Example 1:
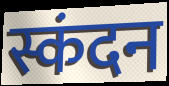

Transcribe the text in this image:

स्कंदन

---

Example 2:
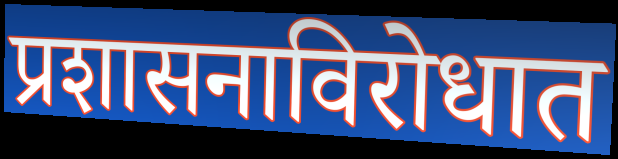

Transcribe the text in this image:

प्रशासनाविरोधात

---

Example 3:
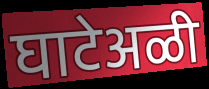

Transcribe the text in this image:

घाटेअळी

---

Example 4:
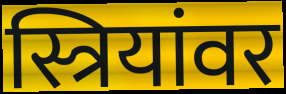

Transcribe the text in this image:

स्त्रियांवर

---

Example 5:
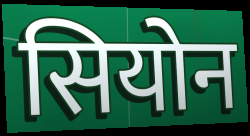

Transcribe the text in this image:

सियोन